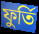
ফুর্তি